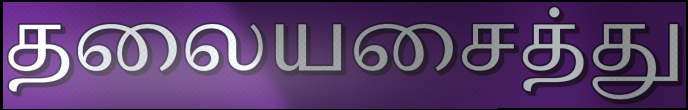
தலையசைத்து